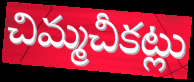
చిమ్మచీకట్లు